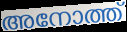
അനോത്ത്